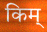
किम्